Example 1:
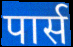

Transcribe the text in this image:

पार्स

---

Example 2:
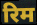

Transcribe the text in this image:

रिम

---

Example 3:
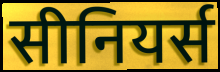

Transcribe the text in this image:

सीनियर्स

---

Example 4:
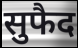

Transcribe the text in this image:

सुफैद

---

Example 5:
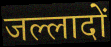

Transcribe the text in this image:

जल्लादों